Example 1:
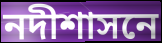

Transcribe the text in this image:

নদীশাসনে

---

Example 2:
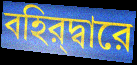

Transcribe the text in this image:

বহির্‌দ্বারে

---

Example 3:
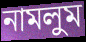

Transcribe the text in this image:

নামলুম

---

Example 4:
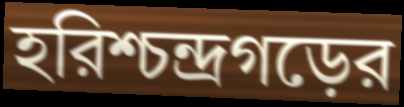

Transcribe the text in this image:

হরিশ্চন্দ্রগড়ের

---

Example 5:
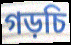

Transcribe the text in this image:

গড়চি